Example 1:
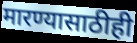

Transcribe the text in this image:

मारण्यासाठीही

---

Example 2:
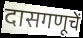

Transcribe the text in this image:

दासगणूचें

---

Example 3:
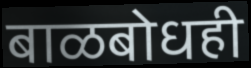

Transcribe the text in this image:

बाळबोधही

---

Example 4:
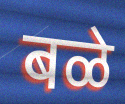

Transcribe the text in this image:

बळे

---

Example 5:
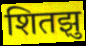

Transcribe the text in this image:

शितझु